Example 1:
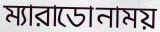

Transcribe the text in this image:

ম্যারাডোনাময়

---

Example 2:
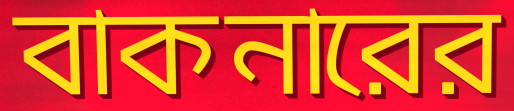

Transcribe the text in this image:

বাকনারের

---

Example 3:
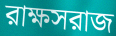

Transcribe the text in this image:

রাক্ষসরাজ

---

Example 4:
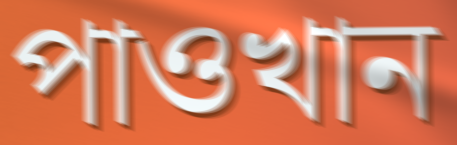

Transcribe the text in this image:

পাওখান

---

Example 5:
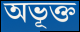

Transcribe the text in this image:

অভূক্ত